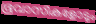
ഭൂവാസികളോടും